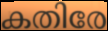
കതിരേ